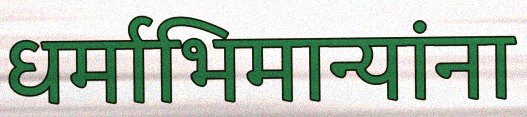
धर्माभिमान्यांना